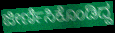
ಜೀರ್ಣಿಸಿಕೊಂಡಿದ್ದ